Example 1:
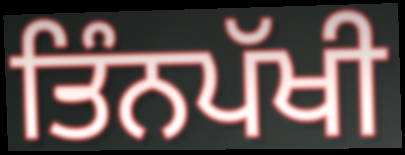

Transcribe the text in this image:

ਤਿੰਨਪੱਖੀ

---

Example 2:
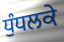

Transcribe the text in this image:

ਧੁੰਧਲਕੇ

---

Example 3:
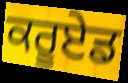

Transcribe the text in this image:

ਕਰੂਏਡ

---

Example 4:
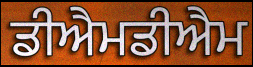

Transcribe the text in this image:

ਡੀਐਮਡੀਐਮ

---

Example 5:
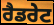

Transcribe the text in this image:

ਰੈਡਰੇਟ